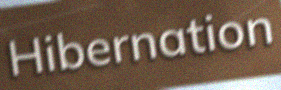
Hibernation